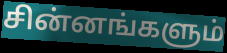
சின்னங்களும்